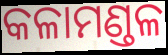
କଳାମଣ୍ଡଳ